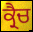
ਕ੍ਰੈਚ